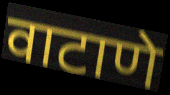
वाटाणे